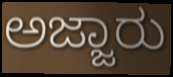
ಅಜ್ಜಾರು